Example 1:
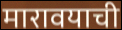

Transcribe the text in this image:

मारावयाची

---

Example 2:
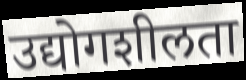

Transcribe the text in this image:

उद्योगशीलता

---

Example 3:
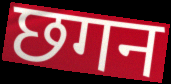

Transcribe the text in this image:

छगन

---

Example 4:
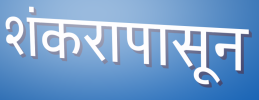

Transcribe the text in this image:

शंकरापासून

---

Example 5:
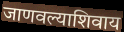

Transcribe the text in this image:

जाणवल्याशिवाय